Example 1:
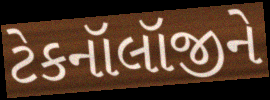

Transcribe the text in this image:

ટેકનૉલૉજીને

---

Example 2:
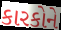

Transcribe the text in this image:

કારકોને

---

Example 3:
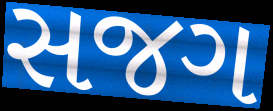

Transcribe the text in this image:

સજગ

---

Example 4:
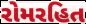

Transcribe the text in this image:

રોમરહિત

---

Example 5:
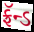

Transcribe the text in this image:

ફ્રૅન્ડ